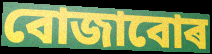
বোজাবোৰ